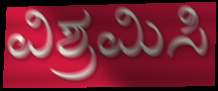
ವಿಶ್ರಮಿಸಿ